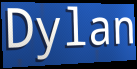
Dylan